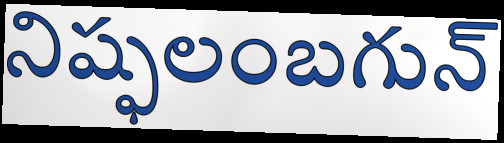
నిష్ఫలంబగున్